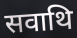
सवाथि